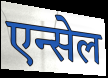
एन्सेल